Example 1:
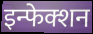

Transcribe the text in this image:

इन्‍फेक्‍शन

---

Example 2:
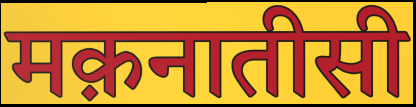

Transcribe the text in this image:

मक़नातीसी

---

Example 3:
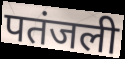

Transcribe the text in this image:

पतंजली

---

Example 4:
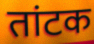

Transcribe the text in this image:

तांटक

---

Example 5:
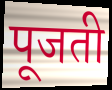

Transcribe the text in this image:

पूजती